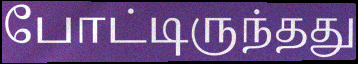
போட்டிருந்தது